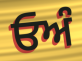
ਓਅੰ